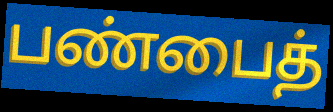
பண்பைத்